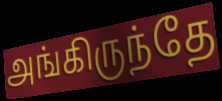
அங்கிருந்தே